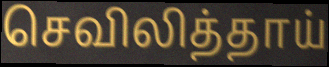
செவிலித்தாய்